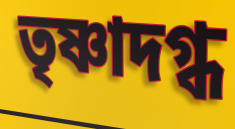
তৃষ্ণাদগ্ধ